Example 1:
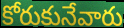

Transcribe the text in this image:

కోరుకునేవారు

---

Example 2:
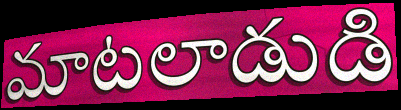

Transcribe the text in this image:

మాటలాడుడి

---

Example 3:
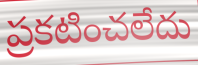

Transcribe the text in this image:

ప్రకటించలేదు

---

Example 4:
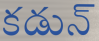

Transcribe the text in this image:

కడున్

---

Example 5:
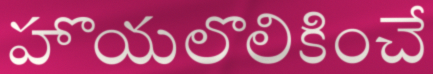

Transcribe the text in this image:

హొయలొలికించే